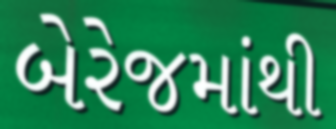
બેરેજમાંથી